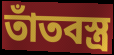
তাঁতবস্ত্র